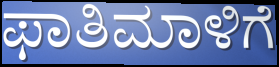
ಫಾತಿಮಾಳಿಗೆ